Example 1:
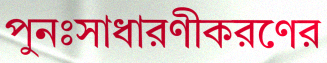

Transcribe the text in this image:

পুনঃসাধারণীকরণের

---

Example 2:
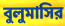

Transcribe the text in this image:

বুলুমাসির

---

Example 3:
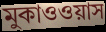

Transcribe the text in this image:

মুকাওওয়াস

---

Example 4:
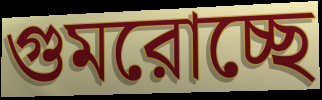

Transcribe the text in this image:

গুমরোচ্ছে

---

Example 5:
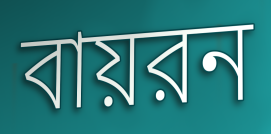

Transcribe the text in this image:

বায়রন